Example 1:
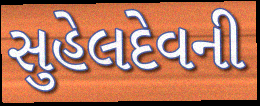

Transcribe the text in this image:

સુહેલદેવની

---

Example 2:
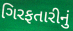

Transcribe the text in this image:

ગિરફતારીનું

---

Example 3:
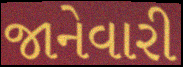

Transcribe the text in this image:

જાનેવારી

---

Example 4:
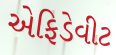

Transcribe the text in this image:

એફિડેવીટ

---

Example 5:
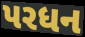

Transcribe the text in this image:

પરધન